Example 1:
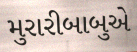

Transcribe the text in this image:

મુરારીબાબુએ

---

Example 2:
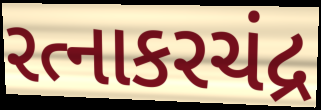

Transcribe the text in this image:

રત્નાકરચંદ્ર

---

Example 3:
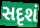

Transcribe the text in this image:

સદૃશં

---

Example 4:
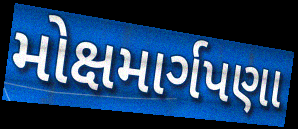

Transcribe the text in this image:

મોક્ષમાર્ગપણા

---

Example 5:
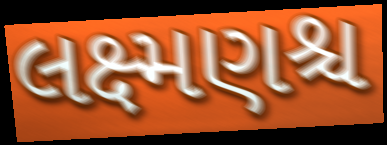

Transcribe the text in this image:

લક્ષ્મણશ્ચ